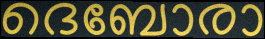
ദെബോരാ